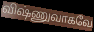
விஷ்ணுவாகவே